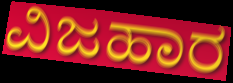
ವಿಜಹಾರ